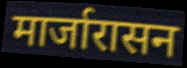
मार्जारासन